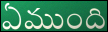
ఏముంది